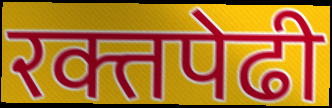
रक्तपेढी